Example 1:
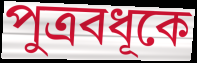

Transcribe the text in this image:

পুত্রবধূকে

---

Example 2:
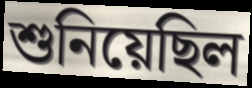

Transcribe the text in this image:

শুনিয়েছিল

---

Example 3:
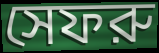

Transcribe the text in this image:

সেফরু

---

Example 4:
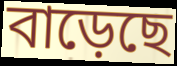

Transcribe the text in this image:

বাড়েছে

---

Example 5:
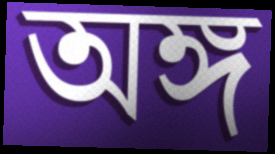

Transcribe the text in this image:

অঙ্গ